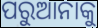
ପରୁଆନାକୁ